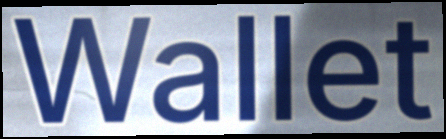
Wallet